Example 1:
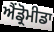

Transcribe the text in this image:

ਐਂਡ੍ਰੋਮੀਡਾ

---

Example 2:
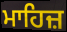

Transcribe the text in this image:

ਮਾਹਿਜ਼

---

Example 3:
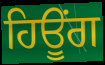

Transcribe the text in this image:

ਹਿਊੰਗ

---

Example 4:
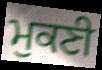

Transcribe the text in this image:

ਮੁਕਣੀ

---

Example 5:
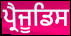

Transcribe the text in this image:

ਪ੍ਰੈਜੂਡਿਸ